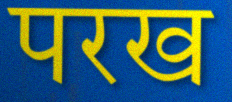
परख